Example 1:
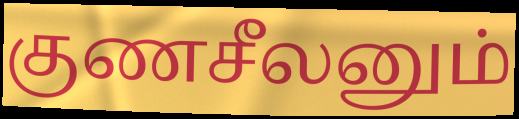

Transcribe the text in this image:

குணசீலனும்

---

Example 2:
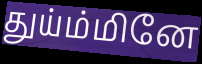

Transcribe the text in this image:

துய்ம்மினே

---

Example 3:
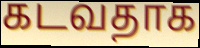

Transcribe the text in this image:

கடவதாக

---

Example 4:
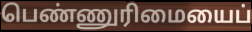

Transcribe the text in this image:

பெண்ணுரிமையைப்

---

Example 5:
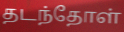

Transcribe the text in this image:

தடந்தோள்